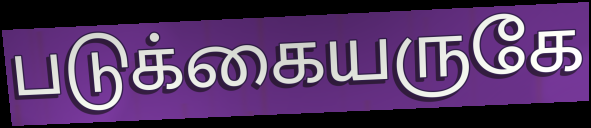
படுக்கையருகே